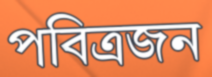
পবিত্রজন